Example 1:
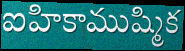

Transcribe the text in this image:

ఐహికాముష్మిక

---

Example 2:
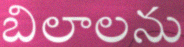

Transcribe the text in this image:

బిలాలను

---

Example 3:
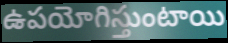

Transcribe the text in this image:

ఉపయోగిస్తుంటాయి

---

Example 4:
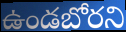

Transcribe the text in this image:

ఉండబోరని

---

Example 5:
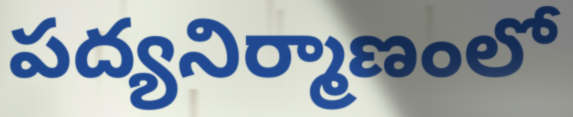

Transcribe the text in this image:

పద్యనిర్మాణంలో